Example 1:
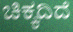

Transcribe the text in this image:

ಚಿಕ್ಕದಿದೆ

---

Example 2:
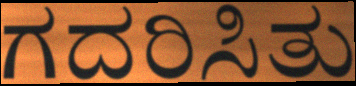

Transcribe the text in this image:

ಗದರಿಸಿತು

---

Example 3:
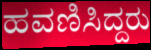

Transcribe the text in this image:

ಹವಣಿಸಿದ್ದರು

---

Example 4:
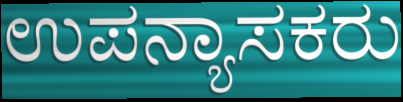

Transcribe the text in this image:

ಉಪನ್ಯಾಸಕರು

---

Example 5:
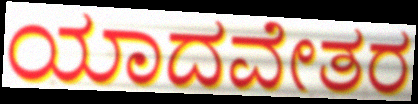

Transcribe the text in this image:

ಯಾದವೇತರ